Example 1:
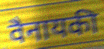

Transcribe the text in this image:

वैनायकी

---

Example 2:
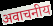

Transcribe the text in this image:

अवाचनीय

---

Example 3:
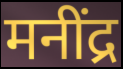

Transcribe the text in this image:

मनींद्र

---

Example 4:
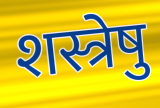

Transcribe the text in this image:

शस्त्रेषु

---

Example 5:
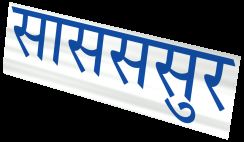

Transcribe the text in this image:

सासससुर